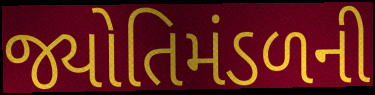
જ્યોતિમંડળની